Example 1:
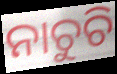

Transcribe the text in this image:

ନାଚୁଚି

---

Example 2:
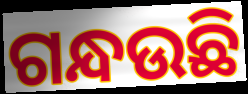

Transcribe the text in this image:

ଗନ୍ଧଉଛି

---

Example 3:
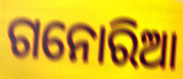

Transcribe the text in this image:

ଗନୋରିଆ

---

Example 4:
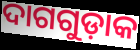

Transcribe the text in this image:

ଦାଗଗୁଡ଼ାକ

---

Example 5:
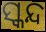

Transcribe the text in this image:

ସ୍କନ୍ଦ